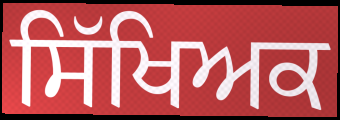
ਸਿੱਖਿਅਕ